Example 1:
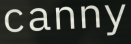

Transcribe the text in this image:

canny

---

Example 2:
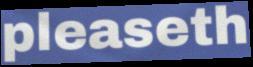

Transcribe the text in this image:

pleaseth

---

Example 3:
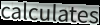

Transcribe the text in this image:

calculates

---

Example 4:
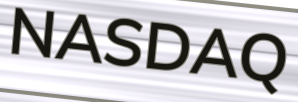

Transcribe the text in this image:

NASDAQ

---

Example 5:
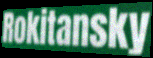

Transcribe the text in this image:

Rokitansky